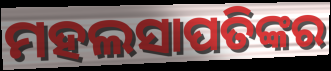
ମହଲସାପତିଙ୍କର